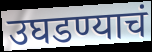
उघडण्याचं